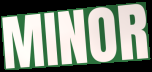
MINOR